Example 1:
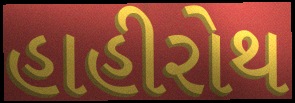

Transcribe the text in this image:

હાહીરોથ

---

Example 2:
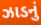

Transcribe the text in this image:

ઝાડનું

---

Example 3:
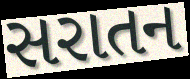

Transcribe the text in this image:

સરાતન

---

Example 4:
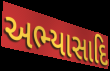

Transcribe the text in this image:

અભ્યાસાદિ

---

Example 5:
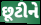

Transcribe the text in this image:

છૂટીને